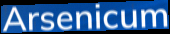
Arsenicum